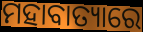
ମହାବାତ୍ୟାରେ